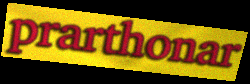
prarthonar